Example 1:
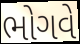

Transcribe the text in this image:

ભોગવે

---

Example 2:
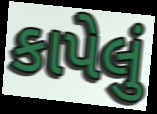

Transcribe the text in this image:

કાપેલું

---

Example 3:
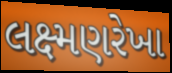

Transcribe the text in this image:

લક્ષ્મણરેખા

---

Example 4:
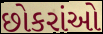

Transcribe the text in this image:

છોકરાંઓ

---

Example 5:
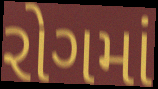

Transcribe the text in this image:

રોગમાં